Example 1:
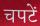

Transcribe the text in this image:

चपटें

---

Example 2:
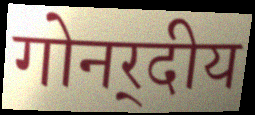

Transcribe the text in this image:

गोनर्दीय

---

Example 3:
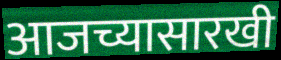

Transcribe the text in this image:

आजच्यासारखी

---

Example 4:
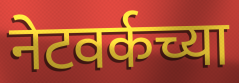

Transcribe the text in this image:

नेटवर्कच्या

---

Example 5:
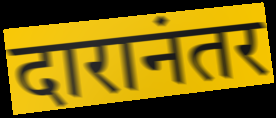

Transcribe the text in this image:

दारानंतर